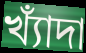
খ্যাঁদা